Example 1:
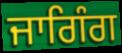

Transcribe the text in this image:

ਜਾਗਿੰਗ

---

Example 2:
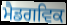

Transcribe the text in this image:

ਮੈਡਗਵਿਕ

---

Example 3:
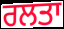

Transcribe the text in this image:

ਰਲਤਾ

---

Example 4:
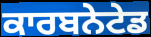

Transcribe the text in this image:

ਕਾਰਬਨੇਟੇਡ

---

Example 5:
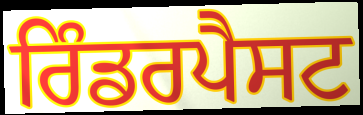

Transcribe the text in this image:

ਰਿੰਡਰਪੈਸਟ